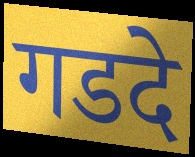
गडदे